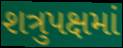
શત્રુપક્ષમાં